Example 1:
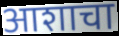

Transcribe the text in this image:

आशाचा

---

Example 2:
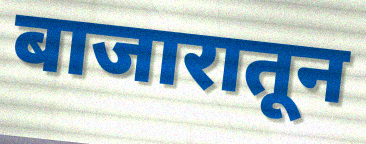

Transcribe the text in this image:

बाजारातून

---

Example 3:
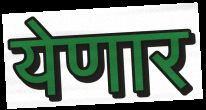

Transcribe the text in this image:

येणार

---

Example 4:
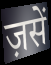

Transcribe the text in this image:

ज़सें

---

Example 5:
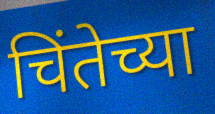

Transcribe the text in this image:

चिंतेच्या